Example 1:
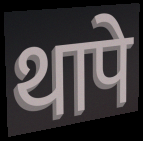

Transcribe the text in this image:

थापे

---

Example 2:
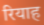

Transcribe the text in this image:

रियाह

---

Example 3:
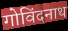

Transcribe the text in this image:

गोविंदनाथ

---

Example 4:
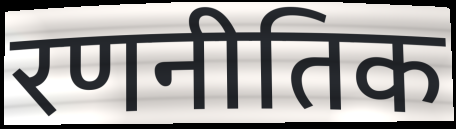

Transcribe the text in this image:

रणनीतिक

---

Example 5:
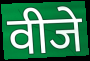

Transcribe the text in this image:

वीजे